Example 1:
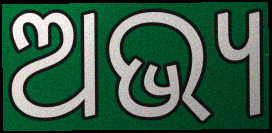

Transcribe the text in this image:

ଅଭ୍ୟ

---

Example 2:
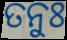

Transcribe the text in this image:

ତନୁଃ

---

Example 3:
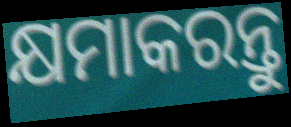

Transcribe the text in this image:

କ୍ଷମାକରନ୍ତୁ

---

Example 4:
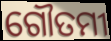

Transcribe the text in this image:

ଗୌତମୀ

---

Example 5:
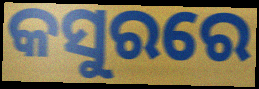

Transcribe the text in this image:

କସୁରରେ